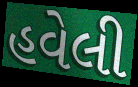
હવેલી